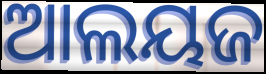
ଆଲୟଜ